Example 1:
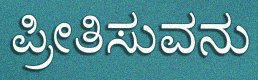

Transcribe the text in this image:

ಪ್ರೀತಿಸುವನು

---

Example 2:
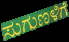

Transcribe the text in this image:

ಸುಗುಣಳಿಗೆ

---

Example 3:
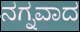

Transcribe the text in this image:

ನಗ್ನವಾದ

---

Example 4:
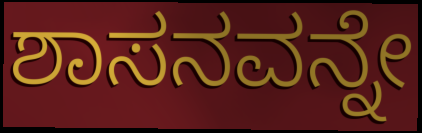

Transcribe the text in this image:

ಶಾಸನವನ್ನೇ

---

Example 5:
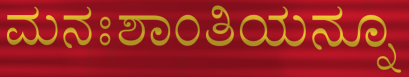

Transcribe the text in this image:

ಮನಃಶಾಂತಿಯನ್ನೂ